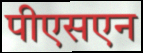
पीएसएन